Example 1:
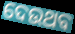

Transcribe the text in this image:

ଦେଉଥବ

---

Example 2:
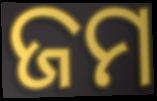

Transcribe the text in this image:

ଜମ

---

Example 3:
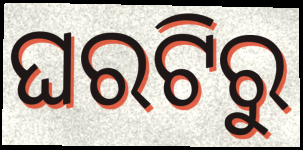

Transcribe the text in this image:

ଘରଟିରୁ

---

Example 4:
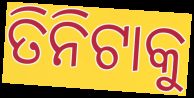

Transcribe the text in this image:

ତିନିଟାକୁ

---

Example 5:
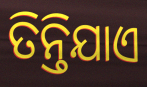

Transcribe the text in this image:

ତିନ୍ତିଯାଏ